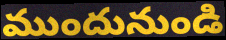
ముందునుండి